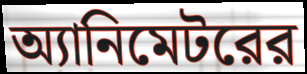
অ্যানিমেটরের